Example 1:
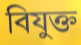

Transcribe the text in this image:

বিযুক্ত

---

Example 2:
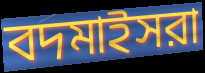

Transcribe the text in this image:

বদমাইসরা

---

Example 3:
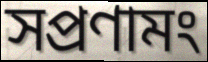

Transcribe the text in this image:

সপ্রণামং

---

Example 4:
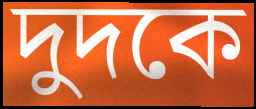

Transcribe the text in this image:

দুদকে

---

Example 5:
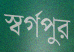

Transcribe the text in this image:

স্বর্গপুর